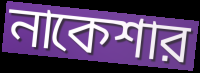
নাকেশার